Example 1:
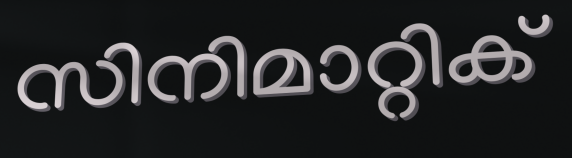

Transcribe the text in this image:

സിനിമാറ്റിക്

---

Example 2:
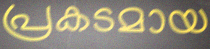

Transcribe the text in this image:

പ്രകടമായ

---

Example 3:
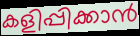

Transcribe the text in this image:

കളിപ്പിക്കാൻ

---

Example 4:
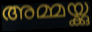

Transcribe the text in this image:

അമ്മയ്ക്കു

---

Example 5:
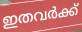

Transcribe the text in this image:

ഇതവർക്ക്